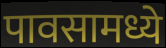
पावसामध्ये